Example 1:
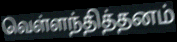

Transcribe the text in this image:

வெள்ளந்தித்தனம்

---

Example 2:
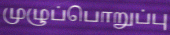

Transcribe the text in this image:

முழுப்பொறுப்பு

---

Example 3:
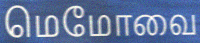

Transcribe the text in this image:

மெமோவை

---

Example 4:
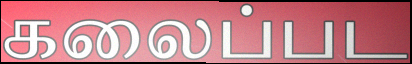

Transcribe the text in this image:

கலைப்பட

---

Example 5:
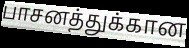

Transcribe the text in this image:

பாசனத்துக்கான